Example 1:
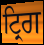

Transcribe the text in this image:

ਟ੍ਰਿਗ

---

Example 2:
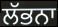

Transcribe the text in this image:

ਲੱਭਨਾ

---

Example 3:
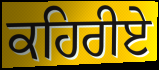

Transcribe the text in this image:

ਕਹਿਰੀਏ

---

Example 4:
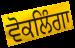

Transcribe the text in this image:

ਵੋਕਲਿੰਗਾ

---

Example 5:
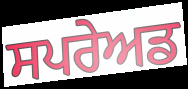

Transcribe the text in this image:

ਸਪਰੇਅਡ